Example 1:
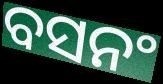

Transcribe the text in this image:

ବସନଂ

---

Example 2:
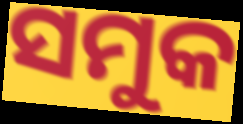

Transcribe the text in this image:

ସମୁକ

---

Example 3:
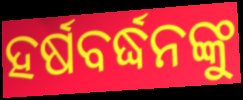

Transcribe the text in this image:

ହର୍ଷବର୍ଦ୍ଧନଙ୍କୁ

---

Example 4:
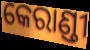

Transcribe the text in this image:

କେରାଣ୍ଡୀ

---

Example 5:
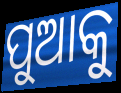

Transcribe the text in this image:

ପୁଆକୁ